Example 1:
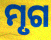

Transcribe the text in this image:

ମୃଗ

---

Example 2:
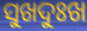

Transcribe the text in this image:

ସୁଖଦୁଃଖ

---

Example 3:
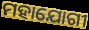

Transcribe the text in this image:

ମହାଯୋଗୀ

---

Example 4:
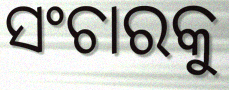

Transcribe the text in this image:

ସଂଚାରକୁ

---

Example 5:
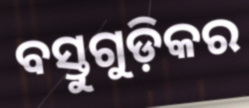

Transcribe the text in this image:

ବସ୍ତୁଗୁଡ଼ିକର